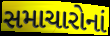
સમાચારોનાં